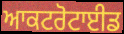
ਆਕਟਰੋਟਾਈਡ